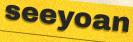
seeyoan